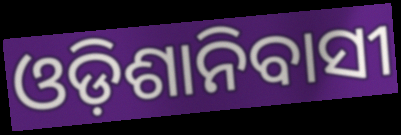
ଓଡ଼ିଶାନିବାସୀ